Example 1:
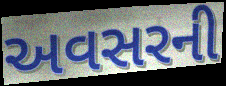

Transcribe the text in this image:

અવસરની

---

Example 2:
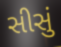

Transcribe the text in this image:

સીસું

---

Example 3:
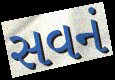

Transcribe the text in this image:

સવનં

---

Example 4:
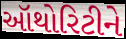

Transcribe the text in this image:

ઑથોરિટીને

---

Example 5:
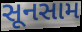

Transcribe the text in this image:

સૂનસામ